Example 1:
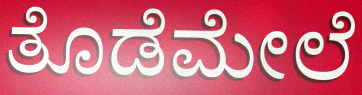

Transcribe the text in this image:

ತೊಡೆಮೇಲೆ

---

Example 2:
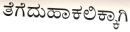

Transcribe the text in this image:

ತೆಗೆದುಹಾಕಲಿಕ್ಕಾಗಿ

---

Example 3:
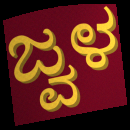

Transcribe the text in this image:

ಜ್ವಳ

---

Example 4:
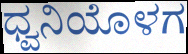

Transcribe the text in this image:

ಧ್ವನಿಯೊಳಗ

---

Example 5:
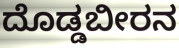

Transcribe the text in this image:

ದೊಡ್ಡಬೀರನ